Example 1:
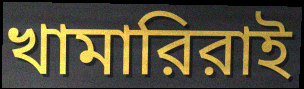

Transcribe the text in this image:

খামারিরাই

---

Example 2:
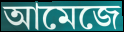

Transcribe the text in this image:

আমেজে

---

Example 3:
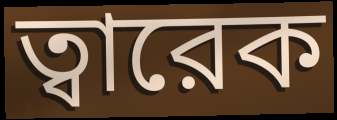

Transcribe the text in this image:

ত্বারেক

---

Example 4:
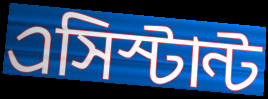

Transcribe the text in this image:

এসিস্টান্ট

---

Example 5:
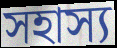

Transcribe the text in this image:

সহাস্য